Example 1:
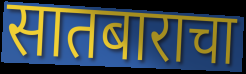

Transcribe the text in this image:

सातबाराचा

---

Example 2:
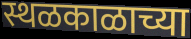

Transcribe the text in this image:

स्थळकाळाच्या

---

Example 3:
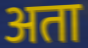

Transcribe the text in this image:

अता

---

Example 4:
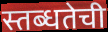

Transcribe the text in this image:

स्तब्धतेची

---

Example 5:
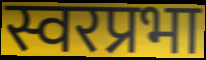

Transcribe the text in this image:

स्वरप्रभा